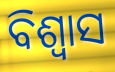
ବିଶ୍ଵାସ